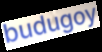
budugoy